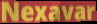
Nexavar